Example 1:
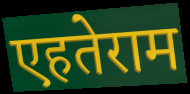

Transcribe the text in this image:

एहतेराम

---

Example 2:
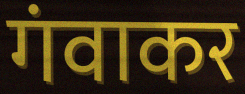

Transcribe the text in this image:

गंवाकर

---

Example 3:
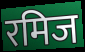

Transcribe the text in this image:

रमिज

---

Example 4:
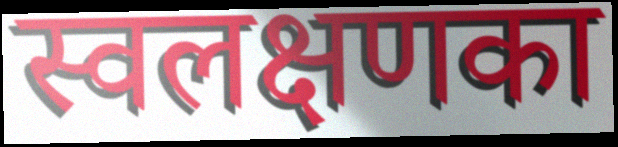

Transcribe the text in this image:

स्वलक्षणका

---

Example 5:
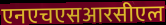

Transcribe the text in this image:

एनएचएसआरसीएल